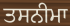
ਤਸਨੀਮਾ